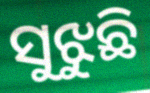
ସୁଝୁଛି